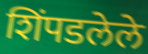
शिंपडलेले